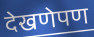
देखणेपण